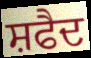
ਸ਼ਫੈਦ